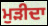
ਮੁੜੀਦਾ